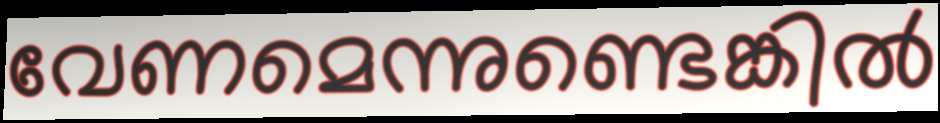
വേണമെന്നുണ്ടെങ്കിൽ